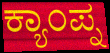
ಕ್ಯಾಂಪ್ನ